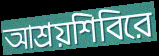
আশ্রয়শিবিরে